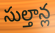
సుల్తాన్ల